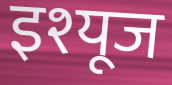
इश्यूज